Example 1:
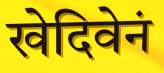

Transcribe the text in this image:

खेदिवेनं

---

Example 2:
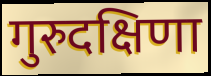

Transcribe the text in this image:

गुरुदक्षिणा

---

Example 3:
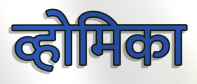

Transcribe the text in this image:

व्होमिका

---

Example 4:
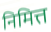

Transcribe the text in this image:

निमित्त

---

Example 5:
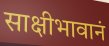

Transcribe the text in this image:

साक्षीभावानं